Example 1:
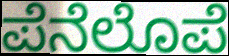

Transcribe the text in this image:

ಪೆನೆಲೊಪೆ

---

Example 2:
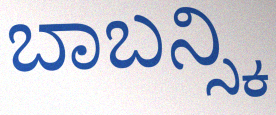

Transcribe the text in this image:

ಬಾಬನ್ಸ್ಕಿ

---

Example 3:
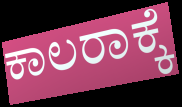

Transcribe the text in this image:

ಕಾಲರಾಕ್ಕೆ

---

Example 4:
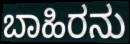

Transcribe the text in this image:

ಬಾಹಿರನು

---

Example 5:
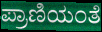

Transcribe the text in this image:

ಪ್ರಾಣಿಯಂತೆ